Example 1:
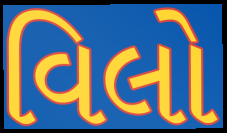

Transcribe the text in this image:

વિલો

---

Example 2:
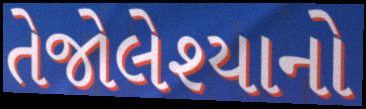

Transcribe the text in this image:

તેજોલેશ્યાનો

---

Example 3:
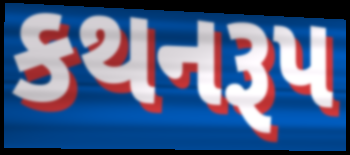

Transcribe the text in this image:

કથનરૂપ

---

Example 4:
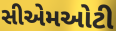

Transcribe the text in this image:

સીએમઓટી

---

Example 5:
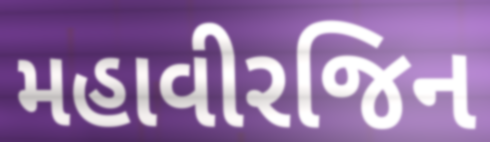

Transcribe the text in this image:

મહાવીરજિન